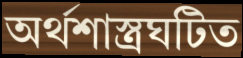
অর্থশাস্ত্রঘটিত